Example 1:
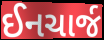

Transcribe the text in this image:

ઈનચાર્જ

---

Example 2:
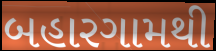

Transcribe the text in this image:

બહારગામથી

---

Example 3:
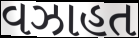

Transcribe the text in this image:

વઝાહત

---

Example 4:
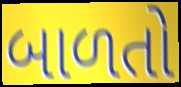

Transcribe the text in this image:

બાળતો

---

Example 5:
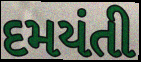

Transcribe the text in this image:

દમયંતી